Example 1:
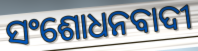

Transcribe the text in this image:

ସଂଶୋଧନବାଦୀ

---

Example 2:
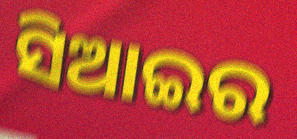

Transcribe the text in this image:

ସିଆଇର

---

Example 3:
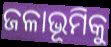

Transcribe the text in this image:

ଜଳାଭୂମିକୁ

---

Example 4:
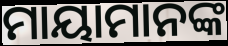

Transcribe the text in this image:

ମାୟାମାନଙ୍କ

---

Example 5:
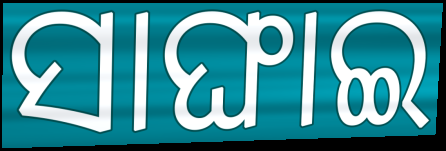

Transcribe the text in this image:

ସାଙ୍ଘାଇ